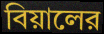
বিয়ালের